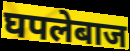
घपलेबाज